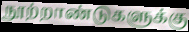
நூற்றாண்டுகளுக்கு